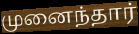
முனைந்தார்